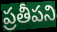
ప్రతీపని